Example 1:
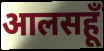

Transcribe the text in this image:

आलसहूँ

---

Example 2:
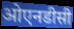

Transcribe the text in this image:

ओएनडीसी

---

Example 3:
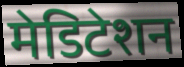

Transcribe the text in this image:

मेडिटेशन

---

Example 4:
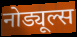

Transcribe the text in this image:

नोड्यूल्स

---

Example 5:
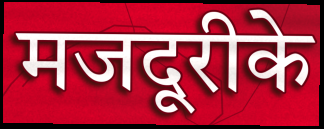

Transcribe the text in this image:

मजदूरीके